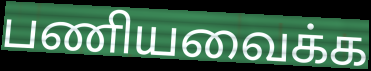
பணியவைக்க